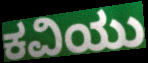
ಕವಿಯು